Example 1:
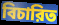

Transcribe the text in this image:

বিচারিত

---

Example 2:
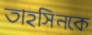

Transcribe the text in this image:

তাহসিনকে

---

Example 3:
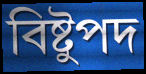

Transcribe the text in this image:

বিষ্টুপদ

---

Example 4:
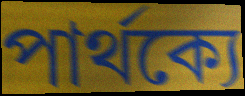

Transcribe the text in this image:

পার্থক্যে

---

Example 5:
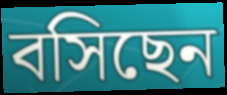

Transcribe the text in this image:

বসিছেন